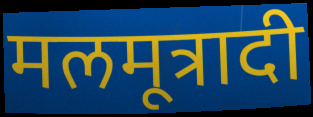
मलमूत्रादी